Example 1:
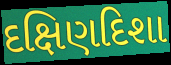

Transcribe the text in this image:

દક્ષિણદિશા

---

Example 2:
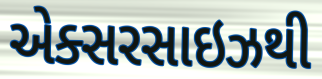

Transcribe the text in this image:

એક્સરસાઇઝથી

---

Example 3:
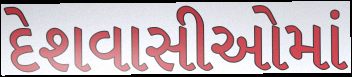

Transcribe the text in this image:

દેશવાસીઓમાં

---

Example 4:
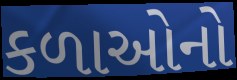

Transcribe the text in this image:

કળાઓનો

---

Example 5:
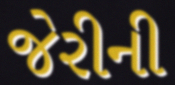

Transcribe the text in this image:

જેરીની